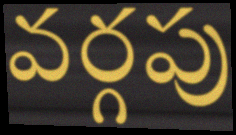
వర్గపు